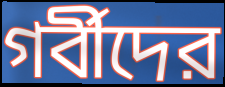
গর্বীদের